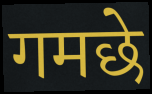
गमछे